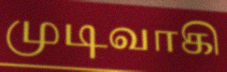
முடிவாகி